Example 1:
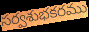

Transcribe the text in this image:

సర్వశుభకరము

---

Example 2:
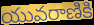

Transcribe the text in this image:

యువరాణికి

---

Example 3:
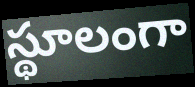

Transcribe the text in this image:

స్థూలంగా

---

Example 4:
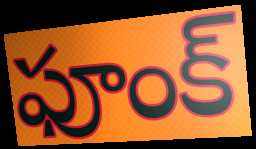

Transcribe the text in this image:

ఫూంక్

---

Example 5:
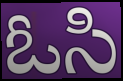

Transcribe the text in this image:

ఓసి